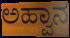
ಅಹ್ವಾನ